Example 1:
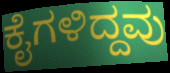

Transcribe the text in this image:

ಕೈಗಳಿದ್ದವು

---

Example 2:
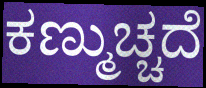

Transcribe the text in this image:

ಕಣ್ಮುಚ್ಚದೆ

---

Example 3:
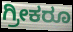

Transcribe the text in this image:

ಗ್ರೀಕರೂ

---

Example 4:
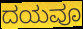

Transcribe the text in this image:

ದಯವೂ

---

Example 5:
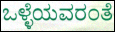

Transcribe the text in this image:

ಒಳ್ಳೆಯವರಂತೆ